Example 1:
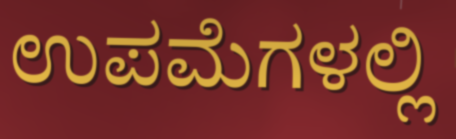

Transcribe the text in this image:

ಉಪಮೆಗಳಲ್ಲಿ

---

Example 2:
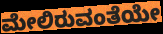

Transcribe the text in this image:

ಮೇಲಿರುವಂತೆಯೇ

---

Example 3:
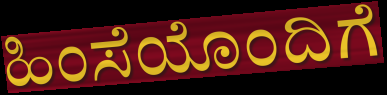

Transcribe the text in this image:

ಹಿಂಸೆಯೊಂದಿಗೆ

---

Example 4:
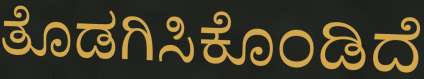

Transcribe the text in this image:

ತೊಡಗಿಸಿಕೊಂಡಿದೆ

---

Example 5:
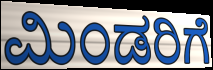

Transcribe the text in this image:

ಮಿಂಡರಿಗೆ